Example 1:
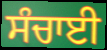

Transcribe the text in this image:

ਸੰਚਾਈ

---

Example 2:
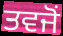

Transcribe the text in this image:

ਤਵਜੋਂ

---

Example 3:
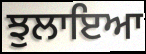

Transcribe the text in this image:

ਝੁਲਾਇਆ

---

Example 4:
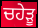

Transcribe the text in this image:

ਚਹੇੜੂ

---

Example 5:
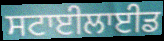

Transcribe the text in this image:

ਸਟਾਈਲਾਈਡ